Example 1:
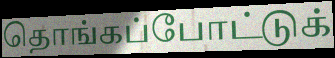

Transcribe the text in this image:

தொங்கப்போட்டுக்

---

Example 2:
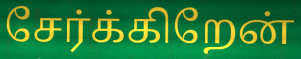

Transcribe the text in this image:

சேர்க்கிறேன்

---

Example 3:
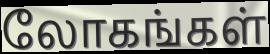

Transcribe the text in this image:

லோகங்கள்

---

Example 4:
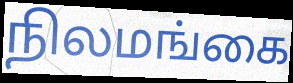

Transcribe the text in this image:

நிலமங்கை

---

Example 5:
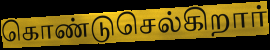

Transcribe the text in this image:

கொண்டுசெல்கிறார்